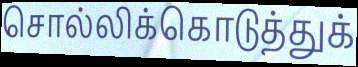
சொல்லிக்கொடுத்துக்